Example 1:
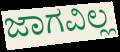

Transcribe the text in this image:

ಜಾಗವಿಲ್ಲ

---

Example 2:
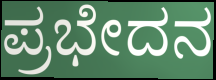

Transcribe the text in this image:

ಪ್ರಭೇದನ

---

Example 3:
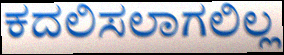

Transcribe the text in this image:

ಕದಲಿಸಲಾಗಲಿಲ್ಲ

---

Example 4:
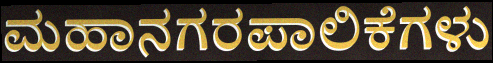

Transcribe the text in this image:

ಮಹಾನಗರಪಾಲಿಕೆಗಳು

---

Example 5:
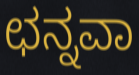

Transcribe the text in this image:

ಛನ್ನವಾ